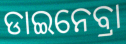
ଡାଇନେବ୍ରା